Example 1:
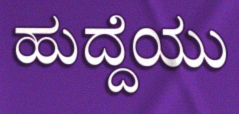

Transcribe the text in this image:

ಹುದ್ದೆಯು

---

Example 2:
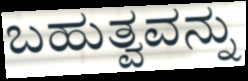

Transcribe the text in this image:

ಬಹುತ್ವವನ್ನು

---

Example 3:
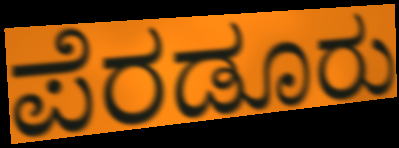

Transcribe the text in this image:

ಪೆರಡೂರು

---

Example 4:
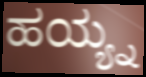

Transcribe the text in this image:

ಹಯ್ಯ್ನ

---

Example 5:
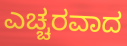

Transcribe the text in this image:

ಎಚ್ಚರವಾದ